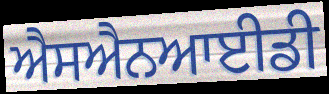
ਐਸਐਨਆਈਡੀ